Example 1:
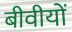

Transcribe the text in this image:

बीवीयों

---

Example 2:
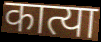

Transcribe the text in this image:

कात्या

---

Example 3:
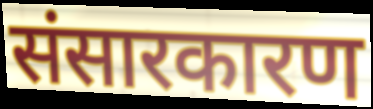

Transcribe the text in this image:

संसारकारण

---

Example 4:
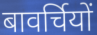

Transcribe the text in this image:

बावर्चियों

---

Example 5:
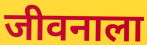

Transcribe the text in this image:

जीवनाला